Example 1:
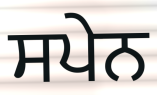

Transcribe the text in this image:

ਸਪੇਨ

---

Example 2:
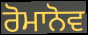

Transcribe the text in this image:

ਰੋਮਾਨੋਵ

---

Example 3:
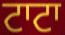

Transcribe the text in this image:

ਟਾਟਾ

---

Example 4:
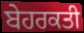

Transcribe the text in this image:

ਬੇਹਰਕਤੀ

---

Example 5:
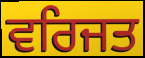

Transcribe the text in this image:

ਵਰਿਜਤ